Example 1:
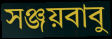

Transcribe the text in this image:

সঞ্জয়বাবু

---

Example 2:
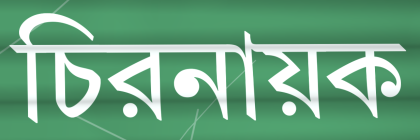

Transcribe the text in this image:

চিরনায়ক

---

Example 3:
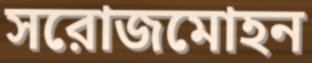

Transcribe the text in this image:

সরোজমোহন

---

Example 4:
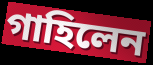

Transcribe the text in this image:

গাহিলেন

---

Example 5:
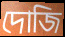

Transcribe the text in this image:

দোজি